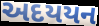
અદયયન